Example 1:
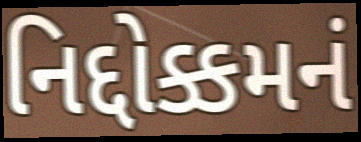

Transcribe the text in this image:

નિદ્દોક્કમનં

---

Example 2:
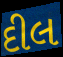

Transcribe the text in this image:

દીલ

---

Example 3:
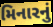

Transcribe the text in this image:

મિનારનું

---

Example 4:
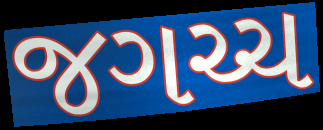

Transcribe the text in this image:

જગચ્ચ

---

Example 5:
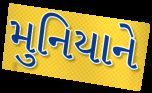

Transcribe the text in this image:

મુનિયાને